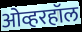
ओव्हरहॉल